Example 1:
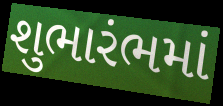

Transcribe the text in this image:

શુભારંભમાં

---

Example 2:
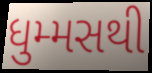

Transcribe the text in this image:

ધુમ્મસથી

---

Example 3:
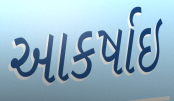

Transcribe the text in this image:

આકર્ષાઇ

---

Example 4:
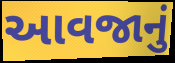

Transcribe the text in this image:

આવજાનું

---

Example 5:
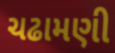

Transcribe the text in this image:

ચઢામણી